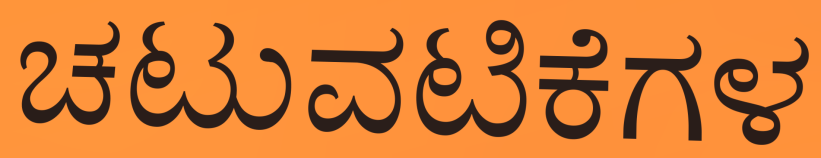
ಚಟುವಟಿಕೆಗಳ